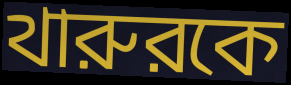
থারুরকে